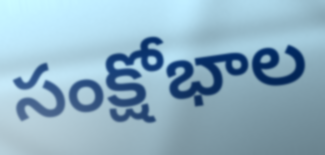
సంక్షోభాల